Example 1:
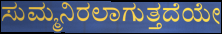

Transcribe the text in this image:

ಸುಮ್ಮನಿರಲಾಗುತ್ತದೆಯೇ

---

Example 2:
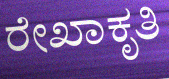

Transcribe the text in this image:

ರೇಖಾಕೃತಿ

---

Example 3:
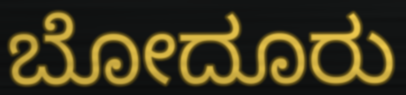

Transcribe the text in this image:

ಬೋದೂರು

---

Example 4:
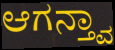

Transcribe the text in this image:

ಆಗನ್ತ್ವಾ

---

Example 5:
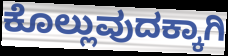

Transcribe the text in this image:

ಕೊಲ್ಲುವುದಕ್ಕಾಗಿ